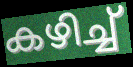
കഴിച്ച്